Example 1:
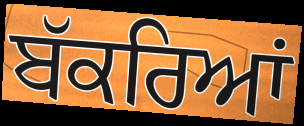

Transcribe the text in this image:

ਬੱਕਰਿਆਂ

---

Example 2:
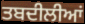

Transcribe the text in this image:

ਤਬਦੀਲੀਆਂ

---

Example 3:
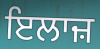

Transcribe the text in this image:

ਇਲਾਜ਼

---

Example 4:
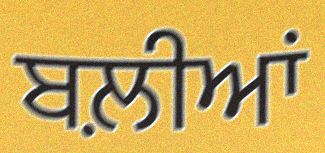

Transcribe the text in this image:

ਬਲ਼ੀਆਂ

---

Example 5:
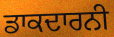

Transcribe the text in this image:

ਡਾਕਦਾਰਨੀ